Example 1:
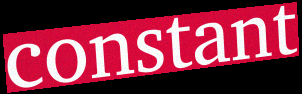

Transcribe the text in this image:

constant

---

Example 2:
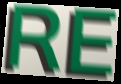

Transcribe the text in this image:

RE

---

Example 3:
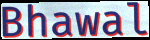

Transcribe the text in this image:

Bhawal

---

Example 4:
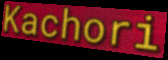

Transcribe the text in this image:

Kachori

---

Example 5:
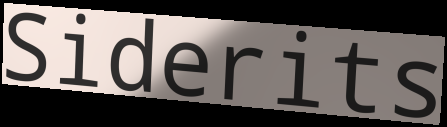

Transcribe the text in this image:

Siderits